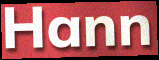
Hann